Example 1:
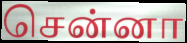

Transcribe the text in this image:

சென்னா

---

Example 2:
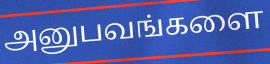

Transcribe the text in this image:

அனுபவங்களை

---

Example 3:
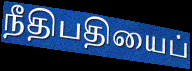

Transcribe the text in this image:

நீதிபதியைப்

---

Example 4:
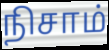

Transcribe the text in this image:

நிசாம்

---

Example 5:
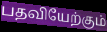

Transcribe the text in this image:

பதவியேற்கும்